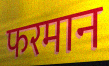
फरमान